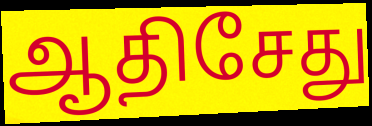
ஆதிசேது